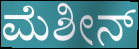
ಮೆಶೀನ್